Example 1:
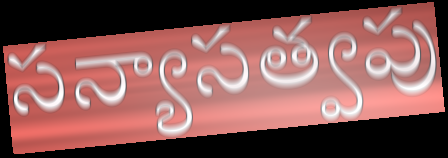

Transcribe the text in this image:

సన్యాసత్వపు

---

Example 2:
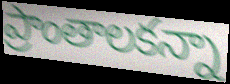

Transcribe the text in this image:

ప్రాంతాలకన్నా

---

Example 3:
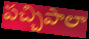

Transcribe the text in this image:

పచ్చిపాలా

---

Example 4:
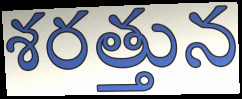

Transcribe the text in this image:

శరత్తున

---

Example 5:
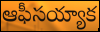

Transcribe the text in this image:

ఆఫీసయ్యాక